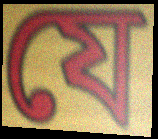
যে